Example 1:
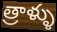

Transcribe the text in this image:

త్రాళ్ళు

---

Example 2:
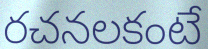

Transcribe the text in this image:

రచనలకంటే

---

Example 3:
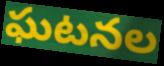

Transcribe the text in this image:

ఘటనల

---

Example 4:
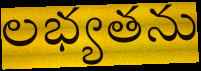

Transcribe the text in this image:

లభ్యతను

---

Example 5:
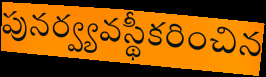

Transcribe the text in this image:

పునర్వ్యవస్థీకరించిన